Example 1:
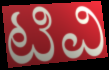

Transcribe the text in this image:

ಟಿವಿ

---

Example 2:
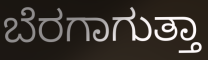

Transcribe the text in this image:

ಬೆರಗಾಗುತ್ತಾ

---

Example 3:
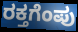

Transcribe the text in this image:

ರಕ್ತಗೆಂಪು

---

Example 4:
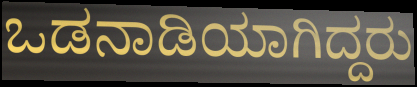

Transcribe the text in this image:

ಒಡನಾಡಿಯಾಗಿದ್ದರು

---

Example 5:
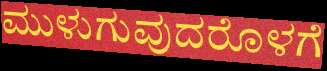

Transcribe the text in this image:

ಮುಳುಗುವುದರೊಳಗೆ